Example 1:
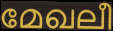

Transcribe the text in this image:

മേഖലീ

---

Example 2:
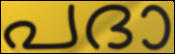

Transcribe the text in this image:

പദാ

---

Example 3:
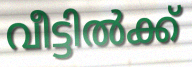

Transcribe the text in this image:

വീട്ടിൽക്ക്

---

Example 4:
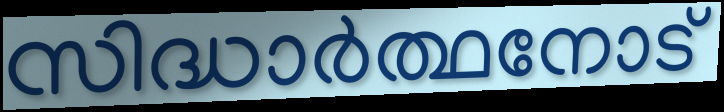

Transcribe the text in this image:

സിദ്ധാർത്ഥനോട്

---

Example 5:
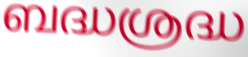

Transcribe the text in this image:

ബദ്ധശ്രദ്ധ